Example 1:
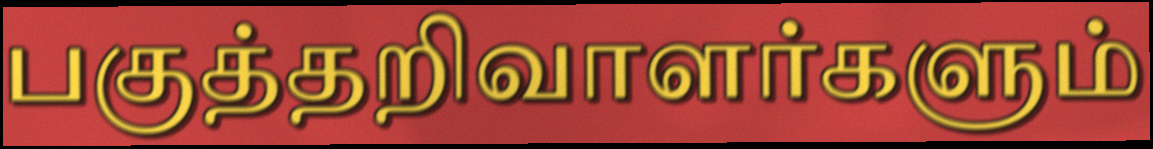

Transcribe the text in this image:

பகுத்தறிவாளர்களும்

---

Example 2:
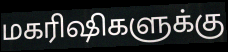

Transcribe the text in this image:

மகரிஷிகளுக்கு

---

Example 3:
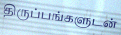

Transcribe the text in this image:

திருப்பங்களுடன்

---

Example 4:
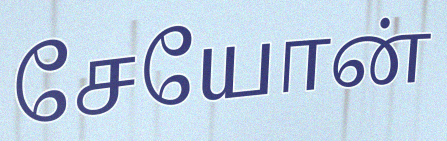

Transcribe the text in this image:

சேயோன்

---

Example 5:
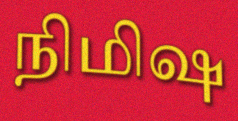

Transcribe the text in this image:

நிமிஷ